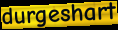
durgeshart